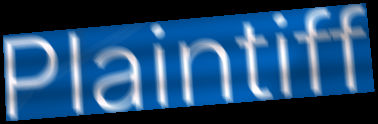
Plaintiff